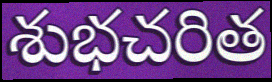
శుభచరిత